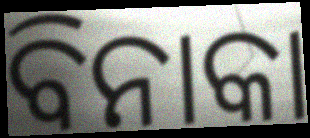
ବିନାକା